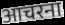
आचरना